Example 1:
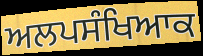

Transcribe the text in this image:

ਅਲਪਸੰਖਿਆਕ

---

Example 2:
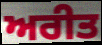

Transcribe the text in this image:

ਅਰੀਤ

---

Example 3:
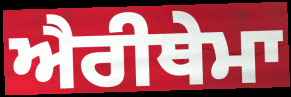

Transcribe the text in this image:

ਐਰੀਥੇਮਾ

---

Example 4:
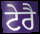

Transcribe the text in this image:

ਟੇਰੈ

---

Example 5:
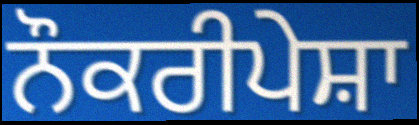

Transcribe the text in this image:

ਨੌਕਰੀਪੇਸ਼ਾ